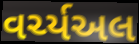
વર્ચ્યઅલ